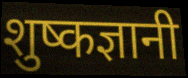
शुष्कज्ञानी